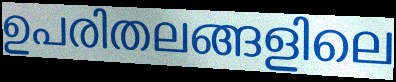
ഉപരിതലങ്ങളിലെ